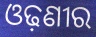
ଓଢ଼ଣୀର